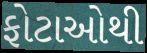
ફોટાઓથી